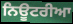
ਨਿਊਟਰੀਆ